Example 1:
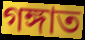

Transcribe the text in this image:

গঙ্গাত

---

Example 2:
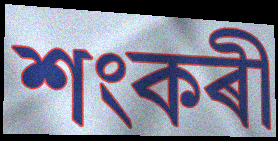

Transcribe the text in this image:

শংকৰী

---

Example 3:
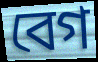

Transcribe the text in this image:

বেগ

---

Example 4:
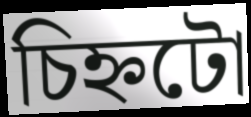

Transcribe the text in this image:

চিহ্নটো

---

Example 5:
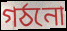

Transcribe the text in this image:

গঠনো